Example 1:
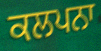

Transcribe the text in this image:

ਕਲਪਨਾ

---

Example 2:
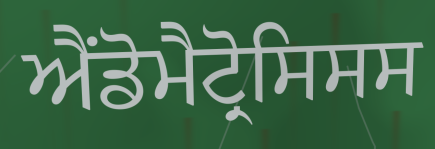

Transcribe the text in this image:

ਐਂਡੋਮੈਟ੍ਰੋਸਿਸਸ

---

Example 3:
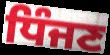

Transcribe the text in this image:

ਧਿੰਜਣ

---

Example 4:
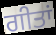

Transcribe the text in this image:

ਗੀਤਾਂ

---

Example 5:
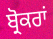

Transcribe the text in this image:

ਬ੍ਰੋਕਰਾਂ